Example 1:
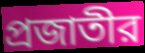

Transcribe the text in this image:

প্রজাতীর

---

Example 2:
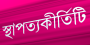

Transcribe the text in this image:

স্থাপত্যকীর্তিটি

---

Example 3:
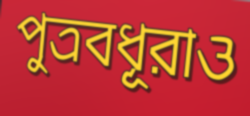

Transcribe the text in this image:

পুত্রবধূরাও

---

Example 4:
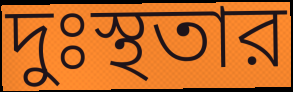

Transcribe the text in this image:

দুঃস্থতার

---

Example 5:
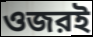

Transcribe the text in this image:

ওজরই